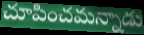
చూపించమన్నాడు